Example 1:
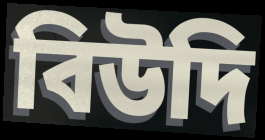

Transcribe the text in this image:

বিউদি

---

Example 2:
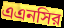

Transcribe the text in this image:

এএনসির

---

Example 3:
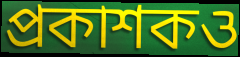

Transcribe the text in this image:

প্রকাশকও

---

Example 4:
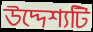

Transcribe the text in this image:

উদ্দেশ্যটি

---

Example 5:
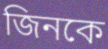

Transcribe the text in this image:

জিনকে